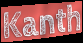
Kanth